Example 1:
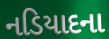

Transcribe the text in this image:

નડિયાદના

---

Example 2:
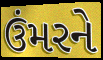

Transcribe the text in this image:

ઉંમરને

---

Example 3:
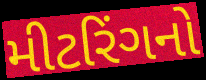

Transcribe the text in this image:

મીટરિંગનો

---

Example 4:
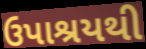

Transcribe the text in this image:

ઉપાશ્રયથી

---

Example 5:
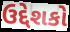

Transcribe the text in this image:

ઉદ્દેશકો